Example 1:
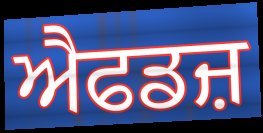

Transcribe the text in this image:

ਐਫਡਜ਼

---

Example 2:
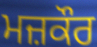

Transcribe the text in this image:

ਮਜ਼ਕੌਰ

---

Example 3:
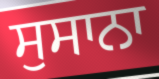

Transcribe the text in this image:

ਸੁਸਾਨਾ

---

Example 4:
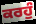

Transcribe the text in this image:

ਕਰਹੁੰ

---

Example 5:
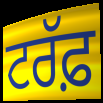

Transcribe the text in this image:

ਟਰੱਫ਼